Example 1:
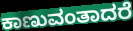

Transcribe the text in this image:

ಕಾಣುವಂತಾದರೆ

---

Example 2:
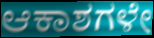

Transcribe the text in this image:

ಆಕಾಶಗಳೇ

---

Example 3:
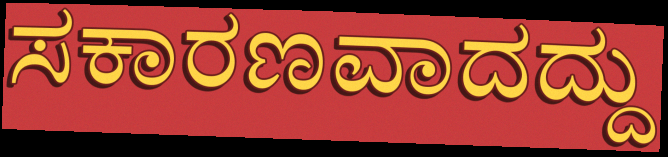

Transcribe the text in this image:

ಸಕಾರಣವಾದದ್ದು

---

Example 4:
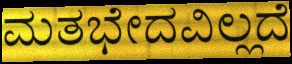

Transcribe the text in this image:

ಮತಭೇದವಿಲ್ಲದೆ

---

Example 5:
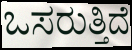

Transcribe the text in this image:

ಒಸರುತ್ತಿದೆ